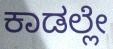
ಕಾಡಲ್ಲೇ